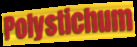
Polystichum